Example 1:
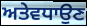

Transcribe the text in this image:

ਅਤੇਵਧਾਉਣ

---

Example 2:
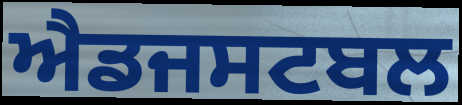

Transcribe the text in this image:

ਐਡਜਸਟਬਲ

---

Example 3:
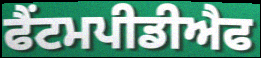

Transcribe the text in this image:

ਫੈਂਟਮਪੀਡੀਐਫ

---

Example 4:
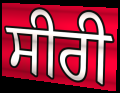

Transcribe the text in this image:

ਸੀਰੀ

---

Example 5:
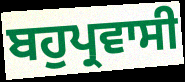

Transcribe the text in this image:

ਬਹੁਪ੍ਰਵਾਸੀ